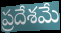
ప్రదేశమే